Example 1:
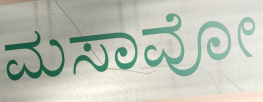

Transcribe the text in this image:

ಮಸಾವೋ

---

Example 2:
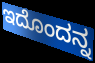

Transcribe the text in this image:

ಇದೊಂದನ್ನ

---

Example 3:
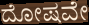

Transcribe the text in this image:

ದೋಷವೇ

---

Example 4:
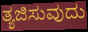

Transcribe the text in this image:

ತ್ಯಜಿಸುವುದು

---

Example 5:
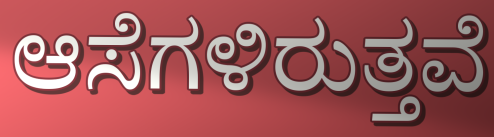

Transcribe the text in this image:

ಆಸೆಗಳಿರುತ್ತವೆ